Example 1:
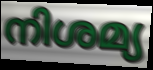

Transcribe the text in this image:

നിശമ്യ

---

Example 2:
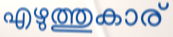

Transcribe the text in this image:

എഴുത്തുകാര്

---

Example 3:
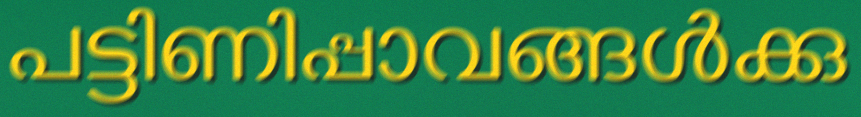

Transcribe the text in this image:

പട്ടിണിപ്പാവങ്ങൾക്കു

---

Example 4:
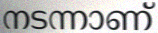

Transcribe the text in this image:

നടന്നാണ്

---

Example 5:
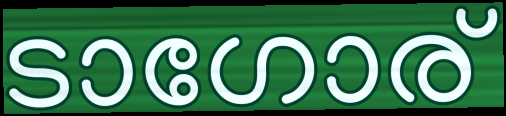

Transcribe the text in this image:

ടാഗോര്